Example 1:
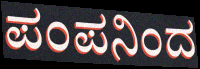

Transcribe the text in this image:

ಪಂಪನಿಂದ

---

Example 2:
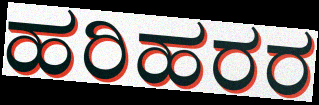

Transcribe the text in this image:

ಹರಿಹರರ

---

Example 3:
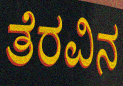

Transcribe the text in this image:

ತೆರವಿನ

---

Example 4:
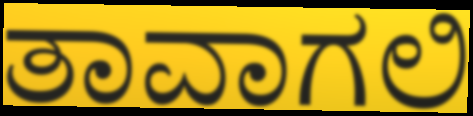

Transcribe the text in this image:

ತಾವಾಗಲಿ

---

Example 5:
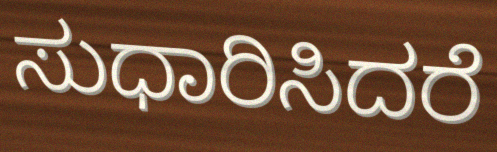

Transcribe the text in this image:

ಸುಧಾರಿಸಿದರೆ